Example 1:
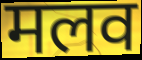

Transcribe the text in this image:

मलव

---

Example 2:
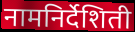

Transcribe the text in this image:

नामनिर्देशिती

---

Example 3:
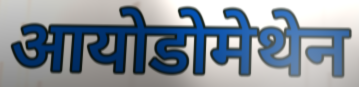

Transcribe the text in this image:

आयोडोमेथेन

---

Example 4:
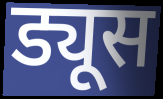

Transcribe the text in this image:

ड्यूस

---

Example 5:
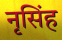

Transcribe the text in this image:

नृसिंह